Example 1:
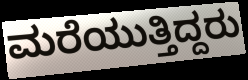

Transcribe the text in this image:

ಮರೆಯುತ್ತಿದ್ದರು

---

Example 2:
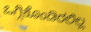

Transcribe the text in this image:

ಒಗ್ಗಿಕೊಂಡಿರಲಿಲ್ಲ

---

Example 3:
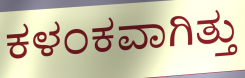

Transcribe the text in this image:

ಕಳಂಕವಾಗಿತ್ತು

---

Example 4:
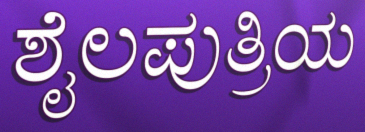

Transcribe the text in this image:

ಶೈಲಪುತ್ರಿಯ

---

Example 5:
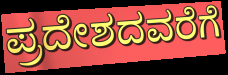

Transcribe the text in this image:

ಪ್ರದೇಶದವರೆಗೆ